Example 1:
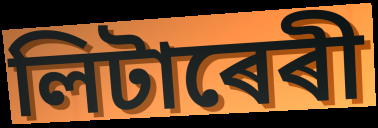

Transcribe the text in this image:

লিটাৰেৰী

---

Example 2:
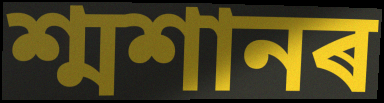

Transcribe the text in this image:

শ্মশানৰ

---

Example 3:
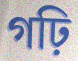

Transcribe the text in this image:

গঢ়ি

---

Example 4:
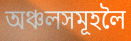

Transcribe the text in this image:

অঞ্চলসমূহলৈ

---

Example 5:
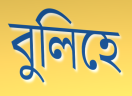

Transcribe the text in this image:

বুলিহে